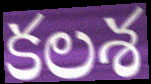
కలశ